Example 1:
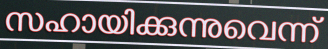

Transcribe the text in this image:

സഹായിക്കുന്നുവെന്ന്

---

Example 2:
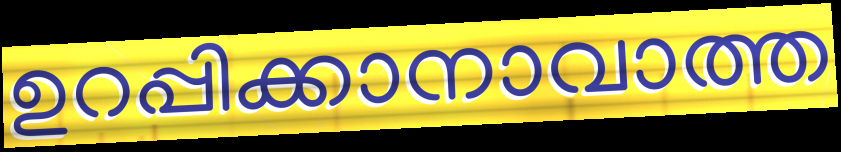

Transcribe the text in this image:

ഉറപ്പിക്കാനാവാത്ത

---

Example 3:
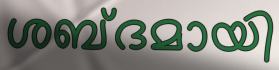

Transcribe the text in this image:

ശബ്ദമായി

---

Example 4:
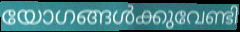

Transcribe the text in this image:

യോഗങ്ങൾക്കുവേണ്ടി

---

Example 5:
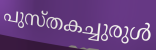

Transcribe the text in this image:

പുസ്തകച്ചുരുൾ